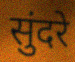
सुंदरे